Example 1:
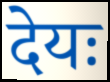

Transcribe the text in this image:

देयः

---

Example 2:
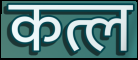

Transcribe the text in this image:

कत्‍ल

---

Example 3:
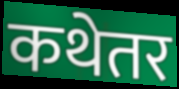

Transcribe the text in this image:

कथेतर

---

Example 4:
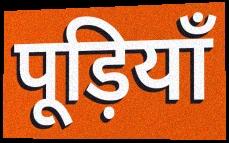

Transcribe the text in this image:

पूड़ियाँ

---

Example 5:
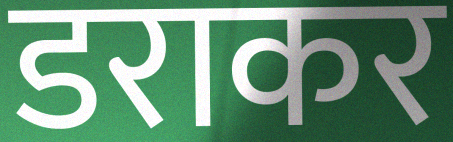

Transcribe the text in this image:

डराकर